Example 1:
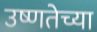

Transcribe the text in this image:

उष्णतेच्या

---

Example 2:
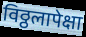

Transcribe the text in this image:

विठ्ठलापेक्षा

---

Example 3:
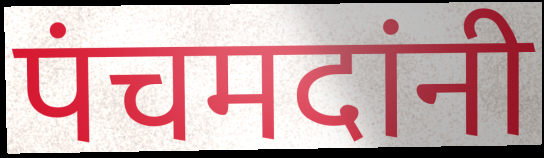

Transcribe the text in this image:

पंचमदांनी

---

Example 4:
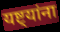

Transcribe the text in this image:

यष्ट्यांना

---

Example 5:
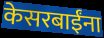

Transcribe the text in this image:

केसरबाईंना